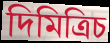
দিমিত্রিচ